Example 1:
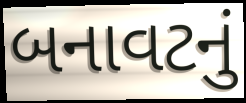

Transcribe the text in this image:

બનાવટનું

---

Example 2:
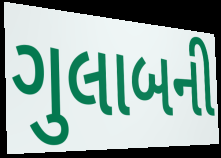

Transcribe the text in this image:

ગુલાબની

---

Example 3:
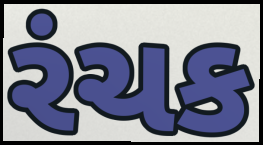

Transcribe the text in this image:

રંચક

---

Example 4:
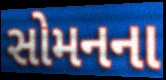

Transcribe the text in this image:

સોમનના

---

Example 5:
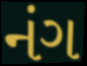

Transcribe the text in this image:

નંગ